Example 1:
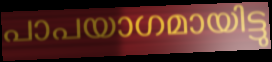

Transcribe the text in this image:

പാപയാഗമായിട്ടു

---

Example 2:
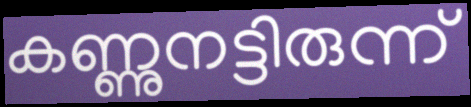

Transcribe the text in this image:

കണ്ണുനട്ടിരുന്ന്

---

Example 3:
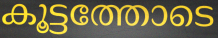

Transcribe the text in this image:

കൂട്ടത്തോടെ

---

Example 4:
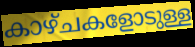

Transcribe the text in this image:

കാഴ്ചകളോടുള്ള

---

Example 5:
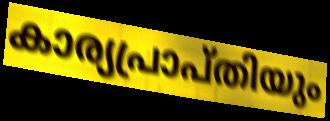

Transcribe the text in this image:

കാര്യപ്രാപ്തിയും